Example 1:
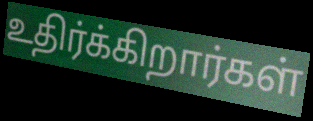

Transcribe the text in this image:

உதிர்க்கிறார்கள்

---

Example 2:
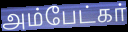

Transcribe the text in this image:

அம்பேட்கர்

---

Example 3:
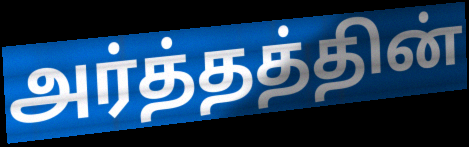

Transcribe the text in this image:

அர்த்தத்தின்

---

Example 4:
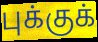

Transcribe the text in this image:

புக்குக்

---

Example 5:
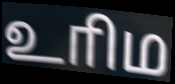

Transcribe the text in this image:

உரிம